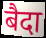
बैदा